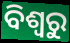
ବିଶ୍ଵରୁ